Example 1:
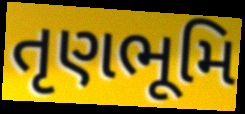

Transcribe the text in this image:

તૃણભૂમિ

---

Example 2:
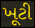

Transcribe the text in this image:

ખૂટી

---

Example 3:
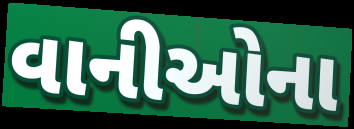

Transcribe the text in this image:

વાનીઓના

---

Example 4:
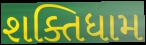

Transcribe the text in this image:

શક્તિધામ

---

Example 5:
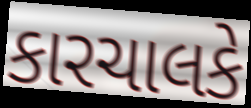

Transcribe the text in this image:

કારચાલકે